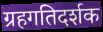
ग्रहगतिदर्शक